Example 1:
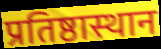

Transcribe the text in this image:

प्रतिष्ठास्थान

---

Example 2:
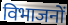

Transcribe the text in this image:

विभाजनों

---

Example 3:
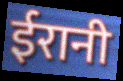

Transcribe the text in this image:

ईरानी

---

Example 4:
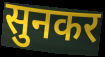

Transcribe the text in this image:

सुनकर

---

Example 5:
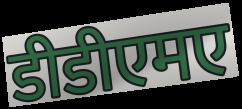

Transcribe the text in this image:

डीडीएमए